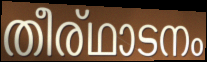
തീര്ഥാടനം